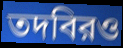
তদবিরও